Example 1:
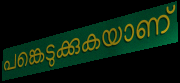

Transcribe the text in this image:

പങ്കെടുക്കുകയാണ്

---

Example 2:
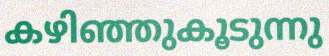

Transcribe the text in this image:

കഴിഞ്ഞുകൂടുന്നു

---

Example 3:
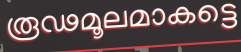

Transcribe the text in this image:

രൂഢമൂലമാകട്ടെ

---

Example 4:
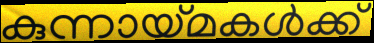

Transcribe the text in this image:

കുന്നായ്മകൾക്ക്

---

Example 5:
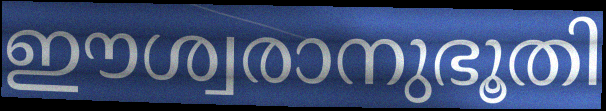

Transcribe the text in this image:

ഈശ്വരാനുഭൂതി